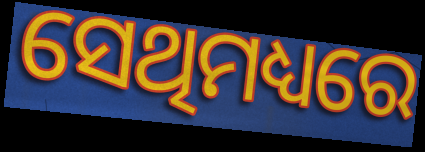
ସେଥିମଧ୍ୟରେ